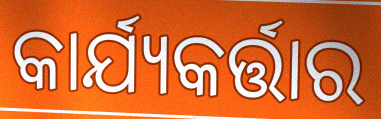
କାର୍ଯ୍ୟକର୍ତ୍ତାର